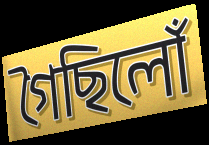
গৈছিলোঁ